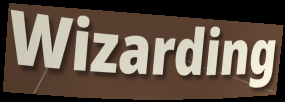
Wizarding